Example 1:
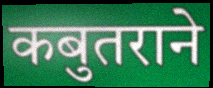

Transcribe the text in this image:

कबुतराने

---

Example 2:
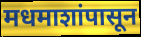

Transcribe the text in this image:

मधमाशांपासून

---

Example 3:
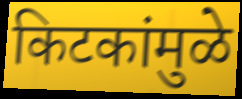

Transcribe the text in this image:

किटकांमुळे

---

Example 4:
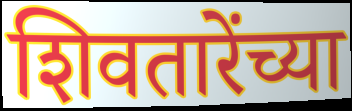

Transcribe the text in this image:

शिवतारेंच्या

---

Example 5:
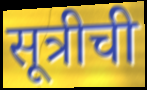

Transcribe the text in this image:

सूत्रीची